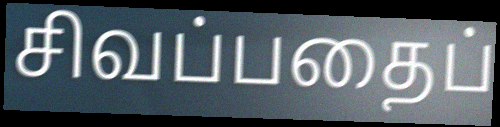
சிவப்பதைப்